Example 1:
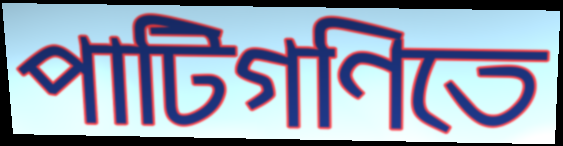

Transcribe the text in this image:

পাটিগণিতে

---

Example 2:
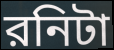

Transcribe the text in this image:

রনিটা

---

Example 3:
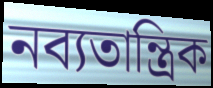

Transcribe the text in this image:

নব্যতান্ত্রিক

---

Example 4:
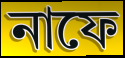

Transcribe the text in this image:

নাফে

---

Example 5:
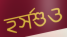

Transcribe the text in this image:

হর্সশুও